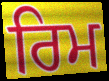
ਰਿਮ